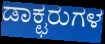
ಡಾಕ್ಟರುಗಳ